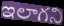
ఇలాగని